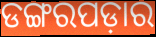
ଡଙ୍ଗରପଡ଼ାର